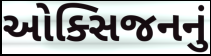
ઓક્સિજનનું